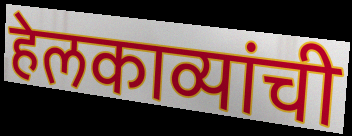
हेलकाव्यांची